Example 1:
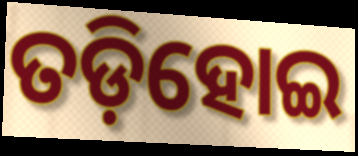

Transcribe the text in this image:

ତଡ଼ିହୋଇ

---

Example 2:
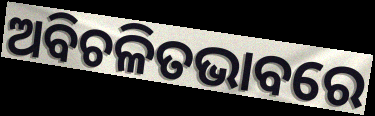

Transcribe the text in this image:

ଅବିଚଳିତଭାବରେ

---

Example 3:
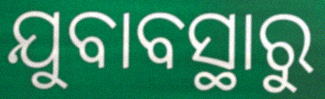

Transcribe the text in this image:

ଯୁବାବସ୍ଥାରୁ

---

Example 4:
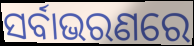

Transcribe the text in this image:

ସର୍ବାଭରଣରେ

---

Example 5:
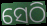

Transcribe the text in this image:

ସେଠି